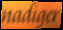
nadiger